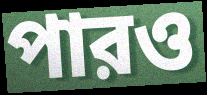
পারও